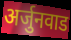
अर्जुनवाड